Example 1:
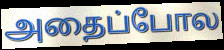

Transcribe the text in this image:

அதைப்போல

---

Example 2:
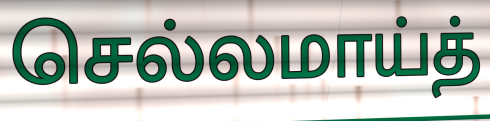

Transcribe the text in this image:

செல்லமாய்த்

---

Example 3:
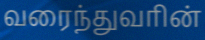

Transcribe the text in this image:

வரைந்துவரின்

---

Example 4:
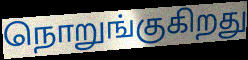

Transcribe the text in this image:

நொறுங்குகிறது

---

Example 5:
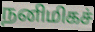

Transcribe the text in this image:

நனிமிகச்